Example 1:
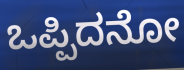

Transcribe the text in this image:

ಒಪ್ಪಿದನೋ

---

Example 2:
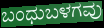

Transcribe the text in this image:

ಬಂಧುಬಳಗವು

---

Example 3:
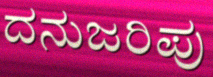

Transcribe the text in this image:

ದನುಜರಿಪು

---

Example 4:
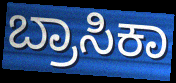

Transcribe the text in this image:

ಬ್ರಾಸಿಕಾ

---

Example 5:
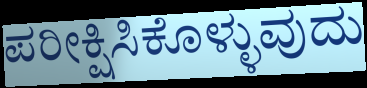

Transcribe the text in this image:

ಪರೀಕ್ಷಿಸಿಕೊಳ್ಳುವುದು